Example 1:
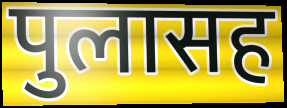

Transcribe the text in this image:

पुलासह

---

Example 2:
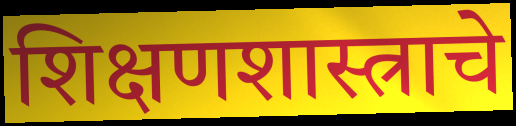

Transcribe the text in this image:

शिक्षणशास्त्राचे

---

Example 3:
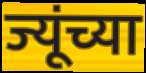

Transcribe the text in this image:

ज्यूंच्या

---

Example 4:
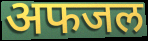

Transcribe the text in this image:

अफजल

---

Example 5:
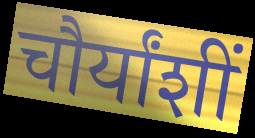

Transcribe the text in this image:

चौर्यांशीं